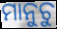
ମାନୁଚୁ